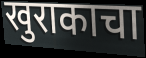
खुराकाचा